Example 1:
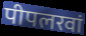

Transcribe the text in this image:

पीपलरवां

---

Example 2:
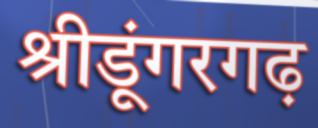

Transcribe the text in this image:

श्रीडूंगरगढ़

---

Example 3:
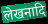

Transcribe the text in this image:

लेखनादि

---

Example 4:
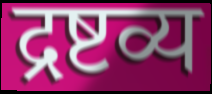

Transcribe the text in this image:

द्रष्टव्य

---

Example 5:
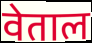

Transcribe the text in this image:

वेताल